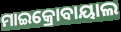
ମାଇକ୍ରୋବାୟାଲ